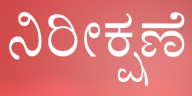
ನಿರೀಕ್ಷಣೆ